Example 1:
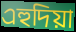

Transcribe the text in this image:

এহুদিয়া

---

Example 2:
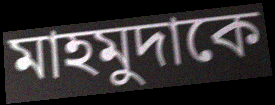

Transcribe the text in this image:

মাহমুদাকে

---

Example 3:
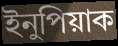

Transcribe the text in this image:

ইনুপিয়াক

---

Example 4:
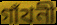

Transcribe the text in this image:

গাঁথনী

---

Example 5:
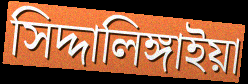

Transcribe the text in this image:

সিদ্দালিঙ্গাইয়া